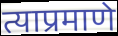
त्याप्रमाणे